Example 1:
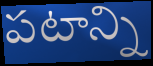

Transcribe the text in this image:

పటాన్ని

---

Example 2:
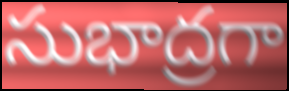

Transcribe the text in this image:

సుభాద్రగా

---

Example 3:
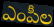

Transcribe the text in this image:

ఎంపీల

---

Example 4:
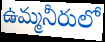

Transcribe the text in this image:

ఉమ్మనీరులో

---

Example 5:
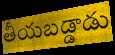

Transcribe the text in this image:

తీయబడ్డాడు